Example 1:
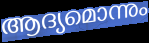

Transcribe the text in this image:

ആദ്യമൊന്നും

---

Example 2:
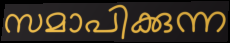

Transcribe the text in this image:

സമാപിക്കുന്ന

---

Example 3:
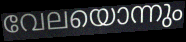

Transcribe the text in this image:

വേലയൊന്നും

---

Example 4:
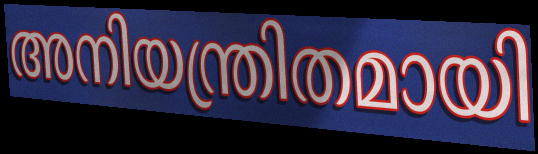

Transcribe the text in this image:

അനിയന്ത്രിതമായി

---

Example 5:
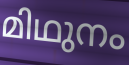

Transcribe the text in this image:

മിഥുനം